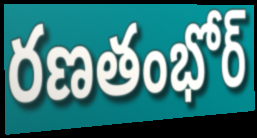
రణతంభోర్